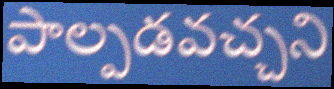
పాల్పడవచ్చని